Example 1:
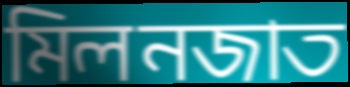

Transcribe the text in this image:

মিলনজাত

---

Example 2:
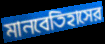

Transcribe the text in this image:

মানবেতিহাসের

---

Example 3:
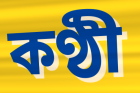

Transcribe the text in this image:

কণ্ঠী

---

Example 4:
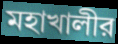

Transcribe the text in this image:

মহাখালীর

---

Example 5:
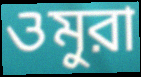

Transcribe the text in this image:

ওমুরা